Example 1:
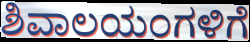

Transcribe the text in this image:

ಶಿವಾಲಯಂಗಳಿಗೆ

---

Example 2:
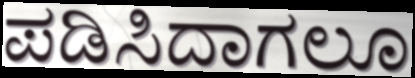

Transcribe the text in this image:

ಪಡಿಸಿದಾಗಲೂ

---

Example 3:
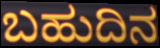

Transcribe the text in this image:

ಬಹುದಿನ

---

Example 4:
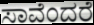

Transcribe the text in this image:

ಸಾವೆಂದರೆ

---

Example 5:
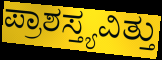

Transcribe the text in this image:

ಪ್ರಾಶಸ್ತ್ಯವಿತ್ತು